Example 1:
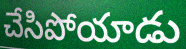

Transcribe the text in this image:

చేసిపోయాడు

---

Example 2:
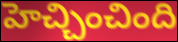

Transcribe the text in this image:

హెచ్చించింది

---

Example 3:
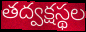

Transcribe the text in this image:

తద్వక్షస్థల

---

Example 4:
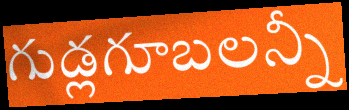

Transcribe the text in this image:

గుడ్లగూబలన్నీ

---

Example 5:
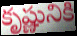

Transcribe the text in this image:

కృష్ణునికి